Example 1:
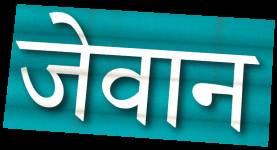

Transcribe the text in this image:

जेवान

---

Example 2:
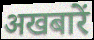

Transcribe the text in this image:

अखबारें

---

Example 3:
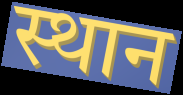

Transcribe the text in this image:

स्‍थान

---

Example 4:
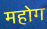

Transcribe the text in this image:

महोग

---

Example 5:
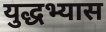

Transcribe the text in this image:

युद्धभ्यास